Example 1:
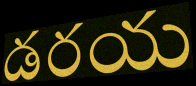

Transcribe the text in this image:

డరయ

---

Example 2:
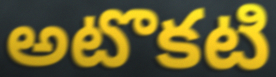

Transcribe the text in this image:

అటొకటి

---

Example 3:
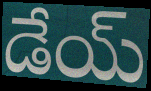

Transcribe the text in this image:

డేయ్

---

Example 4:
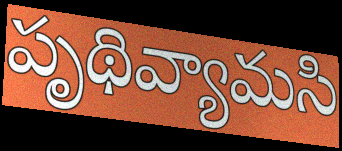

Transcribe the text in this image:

పృథివ్యామసి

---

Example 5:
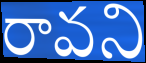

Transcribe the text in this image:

రావని